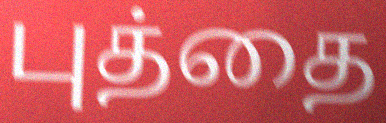
புத்தை